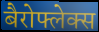
बैरोफ्लेक्स